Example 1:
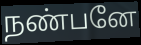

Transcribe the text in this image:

நண்பனே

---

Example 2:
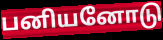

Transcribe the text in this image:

பனியனோடு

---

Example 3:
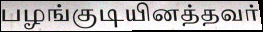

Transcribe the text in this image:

பழங்குடியினத்தவர்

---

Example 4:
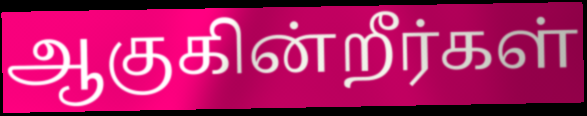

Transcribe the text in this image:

ஆகுகின்றீர்கள்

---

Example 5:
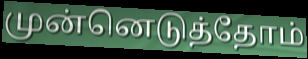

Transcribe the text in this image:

முன்னெடுத்தோம்